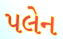
પલેન